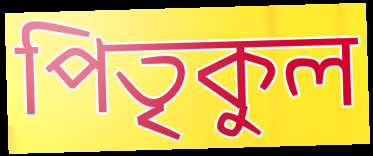
পিতৃকুল